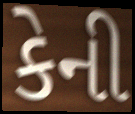
કેની